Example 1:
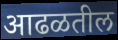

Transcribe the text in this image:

आढळतील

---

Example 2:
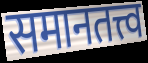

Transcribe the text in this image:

समानतत्त्व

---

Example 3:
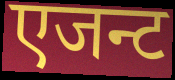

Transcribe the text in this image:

एजन्ट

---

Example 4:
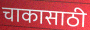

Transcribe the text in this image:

चाकासाठी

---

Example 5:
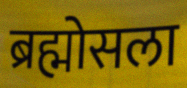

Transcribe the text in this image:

ब्रह्मोसला